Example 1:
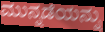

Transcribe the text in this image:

ಮುನ್ನಡೆಯನ್ನು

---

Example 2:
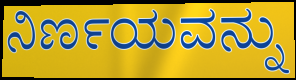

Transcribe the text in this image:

ನಿರ್ಣಯವನ್ನು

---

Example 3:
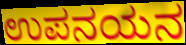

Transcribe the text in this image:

ಉಪನಯನ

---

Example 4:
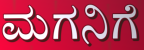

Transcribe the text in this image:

ಮಗನಿಗೆ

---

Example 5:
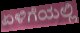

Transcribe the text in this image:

ಏಳಿಗೆಯಲ್ಲಿ